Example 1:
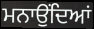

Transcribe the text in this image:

ਮਨਾਉਂਦਿਆਂ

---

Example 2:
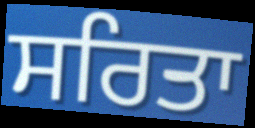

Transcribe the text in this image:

ਸਰਿਤਾ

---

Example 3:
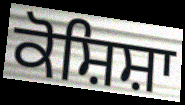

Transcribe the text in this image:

ਕੋਸ਼ਿਸ਼ਾ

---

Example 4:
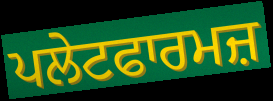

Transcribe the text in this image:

ਪਲੇਟਫਾਰਮਜ਼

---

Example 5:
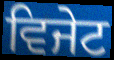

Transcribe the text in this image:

ਵਿਜੇਟ